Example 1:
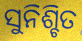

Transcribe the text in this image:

ସୁନିଶ୍ଚିତ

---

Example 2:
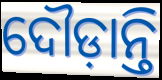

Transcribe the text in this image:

ଦୌଡ଼ାନ୍ତି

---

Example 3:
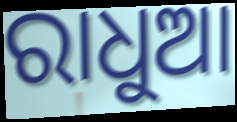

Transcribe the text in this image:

ରାଧୁଆ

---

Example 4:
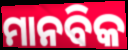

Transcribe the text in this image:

ମାନବିକ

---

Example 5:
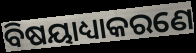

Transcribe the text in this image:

ବିଷୟାଧ୍ୟାକରଣେ